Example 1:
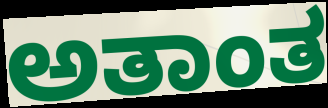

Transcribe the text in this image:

ಅತಾಂತ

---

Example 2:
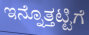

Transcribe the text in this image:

ಇನ್ನೊತ್ತಟ್ಟಿಗೆ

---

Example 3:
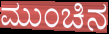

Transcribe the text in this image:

ಮುಂಚಿನ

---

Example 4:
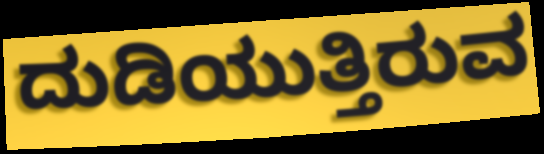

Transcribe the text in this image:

ದುಡಿಯುತ್ತಿರುವ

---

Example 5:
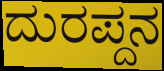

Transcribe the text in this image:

ದುರಪ್ದನ